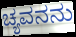
ಚ್ಯವನನು